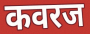
कवरज